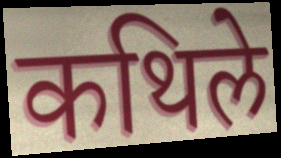
कथिले